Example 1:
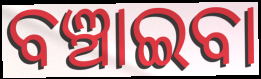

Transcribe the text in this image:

ବଞ୍ଚାଇବା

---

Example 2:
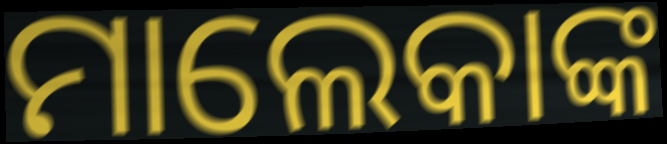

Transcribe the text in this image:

ମାଲେକାଙ୍କ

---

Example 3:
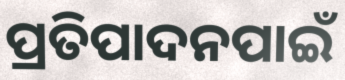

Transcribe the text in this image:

ପ୍ରତିପାଦନପାଇଁ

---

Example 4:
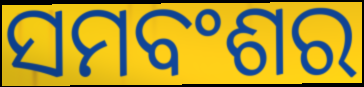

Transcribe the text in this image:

ସମବଂଶର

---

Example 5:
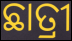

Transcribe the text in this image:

ଛାତ୍ରୀ